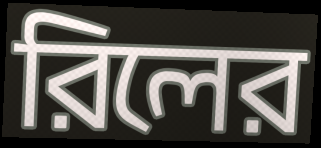
রিলের